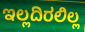
ಇಲ್ಲದಿರಲಿಲ್ಲ